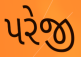
પરેજી